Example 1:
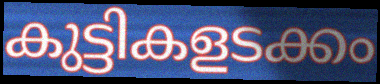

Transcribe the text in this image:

കുട്ടികളടക്കം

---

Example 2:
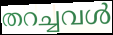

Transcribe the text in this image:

തറച്ചവൾ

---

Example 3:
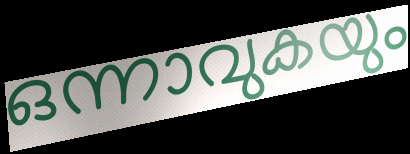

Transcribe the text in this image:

ഒന്നാവുകയും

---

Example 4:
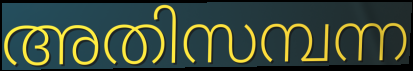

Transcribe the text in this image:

അതിസമ്പന്ന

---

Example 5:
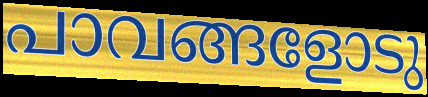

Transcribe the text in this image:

പാവങ്ങളോടു